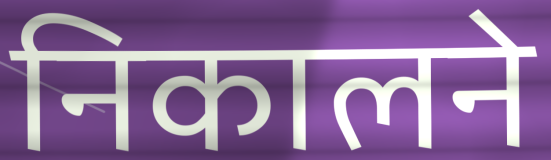
निकालने